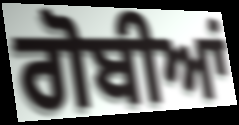
ਗੋਬੀਆਂ